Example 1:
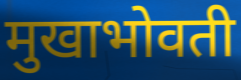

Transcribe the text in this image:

मुखाभोवती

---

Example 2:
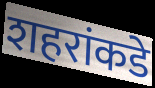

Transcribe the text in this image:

शहरांकडे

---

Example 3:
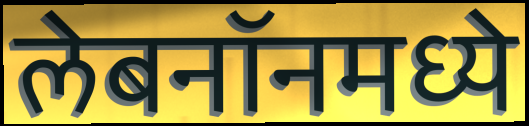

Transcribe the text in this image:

लेबनॉनमध्ये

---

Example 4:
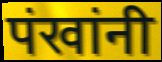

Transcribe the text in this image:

पंखांनी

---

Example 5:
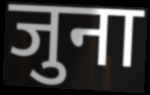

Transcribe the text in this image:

जुना